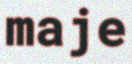
maje